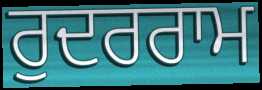
ਰੁਦਰਰਾਮ